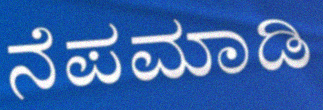
ನೆಪಮಾಡಿ